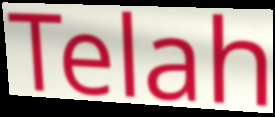
Telah